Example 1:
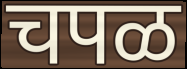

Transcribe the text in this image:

चपळ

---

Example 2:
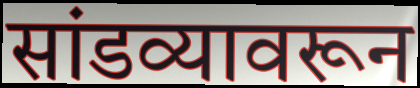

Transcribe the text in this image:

सांडव्यावरून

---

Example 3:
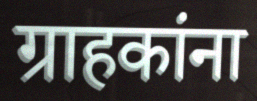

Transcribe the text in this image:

ग्राहकांना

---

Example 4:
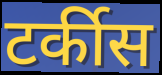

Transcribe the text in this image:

टर्कीस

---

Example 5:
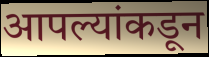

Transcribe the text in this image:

आपल्यांकडून